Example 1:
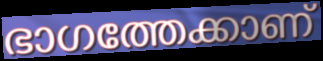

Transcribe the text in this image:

ഭാഗത്തേക്കാണ്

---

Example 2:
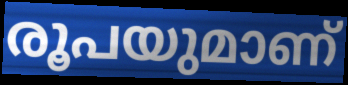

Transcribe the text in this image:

രൂപയുമാണ്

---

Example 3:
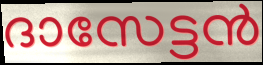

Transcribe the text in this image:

ദാസേട്ടൻ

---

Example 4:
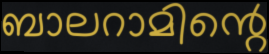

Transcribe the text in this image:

ബാലറാമിന്റെ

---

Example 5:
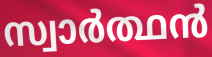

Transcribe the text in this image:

സ്വാർത്ഥൻ